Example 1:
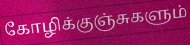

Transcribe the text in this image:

கோழிக்குஞ்சுகளும்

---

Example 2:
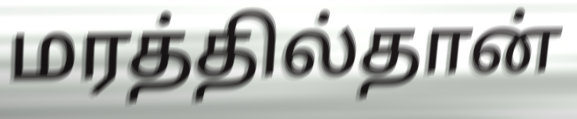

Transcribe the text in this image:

மரத்தில்தான்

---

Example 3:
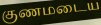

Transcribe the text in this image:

குணமடைய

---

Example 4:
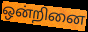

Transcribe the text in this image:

ஒன்றினை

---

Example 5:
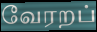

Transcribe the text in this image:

வேரறப்